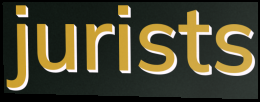
jurists